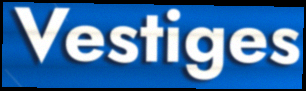
Vestiges